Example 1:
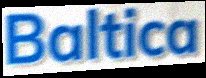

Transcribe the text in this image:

Baltica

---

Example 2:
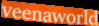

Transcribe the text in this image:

veenaworld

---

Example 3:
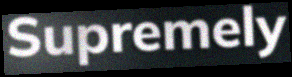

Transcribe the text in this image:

Supremely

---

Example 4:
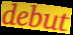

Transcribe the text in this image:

debut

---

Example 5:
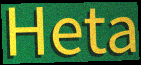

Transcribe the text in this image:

Heta